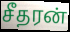
சீதரன்